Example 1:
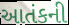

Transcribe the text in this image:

આતંકની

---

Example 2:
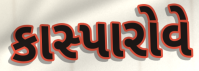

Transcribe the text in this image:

કાસ્પારોવે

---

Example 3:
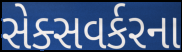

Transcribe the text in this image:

સેક્સવર્કરના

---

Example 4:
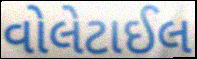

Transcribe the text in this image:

વોલેટાઈલ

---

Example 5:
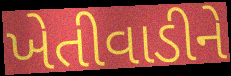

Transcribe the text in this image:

ખેતીવાડીને